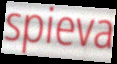
spieva